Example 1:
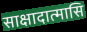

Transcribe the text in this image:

साक्षादात्मासि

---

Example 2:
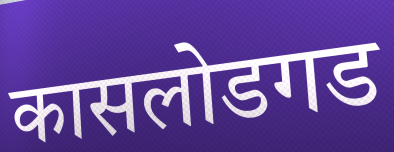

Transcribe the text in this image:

कासलोडगड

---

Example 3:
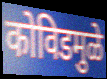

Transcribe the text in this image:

कोविडमुळे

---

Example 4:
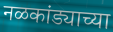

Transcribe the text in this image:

नळकांड्याच्या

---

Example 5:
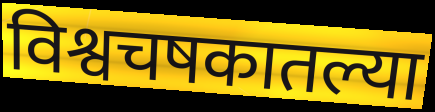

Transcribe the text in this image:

विश्वचषकातल्या